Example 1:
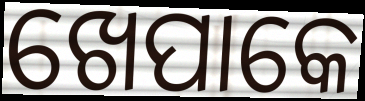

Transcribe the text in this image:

ଖେପାକେ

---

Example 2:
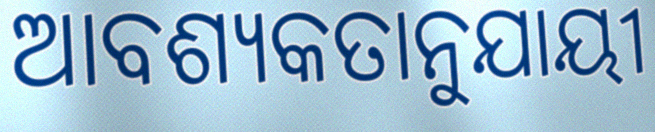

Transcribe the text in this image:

ଆବଶ୍ୟକତାନୁଯାୟୀ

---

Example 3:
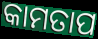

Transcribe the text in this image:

କାମତାପ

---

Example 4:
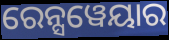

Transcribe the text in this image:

ରେନ୍ସୱେୟାର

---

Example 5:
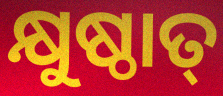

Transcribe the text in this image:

କ୍ଷୁଷ୍ଠାତ୍